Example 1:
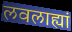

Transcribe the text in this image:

लवलाह्यां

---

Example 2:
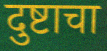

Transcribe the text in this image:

दुष्टाचा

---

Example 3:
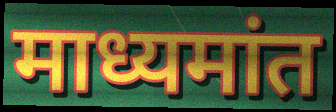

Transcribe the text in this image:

माध्यमांत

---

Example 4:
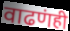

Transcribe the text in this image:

वाढणंही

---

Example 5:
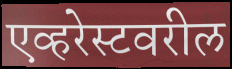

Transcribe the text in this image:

एव्हरेस्टवरील